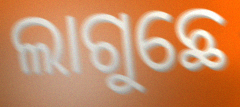
ଲାଗୁଛେ